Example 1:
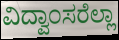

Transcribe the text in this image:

ವಿದ್ವಾಂಸರೆಲ್ಲಾ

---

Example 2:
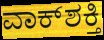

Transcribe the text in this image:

ವಾಕ್‌ಶಕ್ತಿ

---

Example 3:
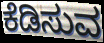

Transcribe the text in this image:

ಕೆಡಿಸುವ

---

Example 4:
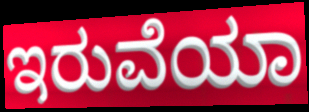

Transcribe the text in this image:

ಇರುವೆಯಾ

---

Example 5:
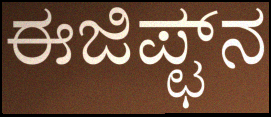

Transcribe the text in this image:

ಈಜಿಪ್ಟ್‌ನ